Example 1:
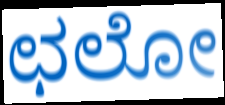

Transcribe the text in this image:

ಛಲೋ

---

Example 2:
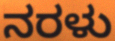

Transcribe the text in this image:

ನರಳು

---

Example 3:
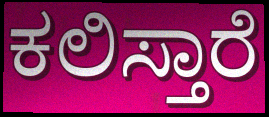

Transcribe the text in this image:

ಕಲಿಸ್ತಾರೆ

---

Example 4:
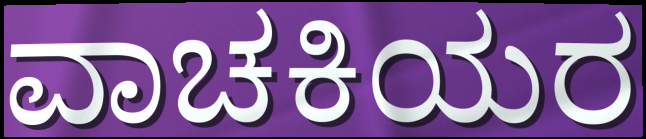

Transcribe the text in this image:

ವಾಚಕಿಯರ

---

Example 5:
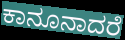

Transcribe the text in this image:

ಕಾನೂನಾದರೆ